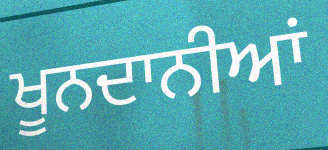
ਖੂਨਦਾਨੀਆਂ